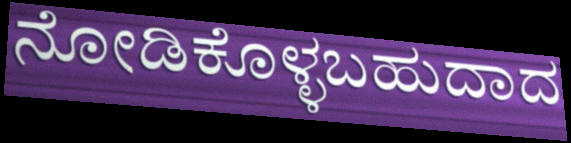
ನೋಡಿಕೊಳ್ಳಬಹುದಾದ